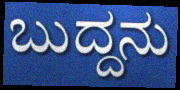
ಬುದ್ದನು